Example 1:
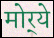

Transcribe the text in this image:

मोर्ये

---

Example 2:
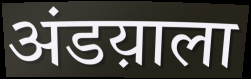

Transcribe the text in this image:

अंडय़ाला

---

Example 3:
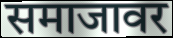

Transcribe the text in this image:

समाजावर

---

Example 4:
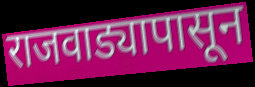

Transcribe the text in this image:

राजवाड्यापासून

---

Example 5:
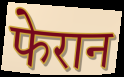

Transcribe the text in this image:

फेरान